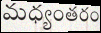
మధ్యంతరం